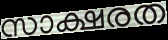
സാക്ഷരത